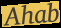
Ahab